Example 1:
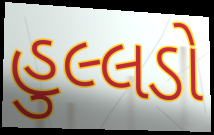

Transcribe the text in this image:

હુલ્લડો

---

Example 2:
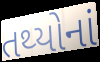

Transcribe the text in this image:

તથ્યોનાં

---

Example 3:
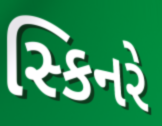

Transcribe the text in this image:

સ્કિનરે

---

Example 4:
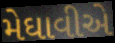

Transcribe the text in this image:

મેઘાવીએ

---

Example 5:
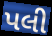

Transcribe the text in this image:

પલી